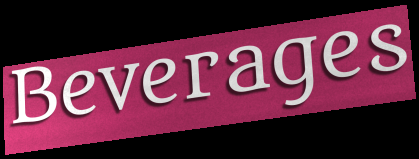
Beverages